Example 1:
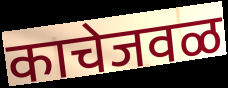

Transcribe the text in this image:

काचेजवळ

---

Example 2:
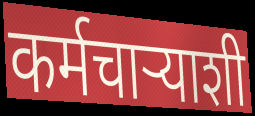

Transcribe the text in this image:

कर्मचाऱ्याशी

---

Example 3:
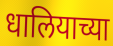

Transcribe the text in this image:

धालियाच्या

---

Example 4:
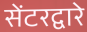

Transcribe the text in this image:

सेंटरद्वारे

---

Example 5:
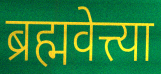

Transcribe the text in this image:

ब्रह्मवेत्त्या